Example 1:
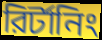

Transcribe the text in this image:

রির্টানিং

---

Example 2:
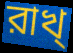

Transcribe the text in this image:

রাখ্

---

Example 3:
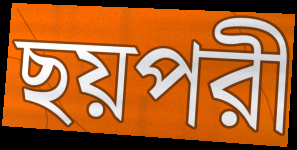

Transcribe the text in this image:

ছয়পরী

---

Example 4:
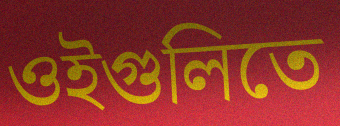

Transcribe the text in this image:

ওইগুলিতে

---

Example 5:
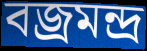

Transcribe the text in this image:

বজ্রমন্দ্র